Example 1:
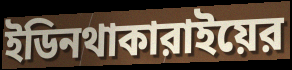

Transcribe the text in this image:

ইডিনথাকারাইয়ের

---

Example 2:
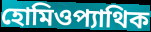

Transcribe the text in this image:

হোমিওপ্যাথিক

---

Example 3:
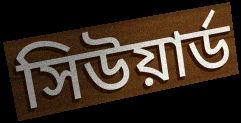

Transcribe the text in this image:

সিউয়ার্ড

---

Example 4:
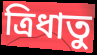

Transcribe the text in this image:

ত্রিধাতু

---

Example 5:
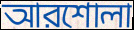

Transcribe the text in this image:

আরশোলা